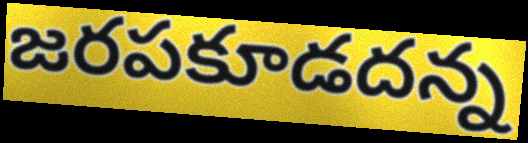
జరపకూడదన్న